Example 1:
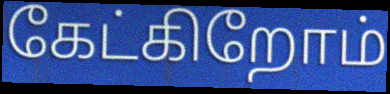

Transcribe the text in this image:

கேட்கிறோம்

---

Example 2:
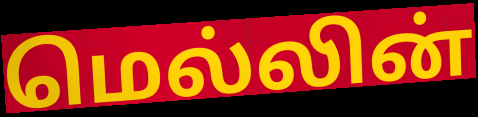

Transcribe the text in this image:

மெல்லின்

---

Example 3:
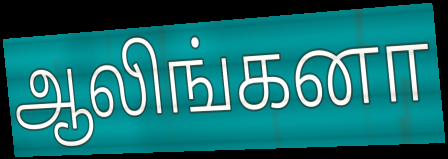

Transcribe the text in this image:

ஆலிங்கனா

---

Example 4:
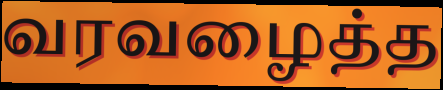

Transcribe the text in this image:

வரவழைத்த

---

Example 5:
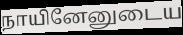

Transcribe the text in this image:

நாயினேனுடைய